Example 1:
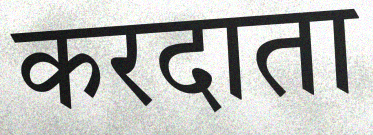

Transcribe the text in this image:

करदाता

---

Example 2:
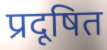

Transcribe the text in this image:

प्रदूषित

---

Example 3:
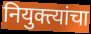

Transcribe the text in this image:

नियुक्त्यांचा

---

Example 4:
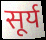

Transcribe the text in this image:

सूर्य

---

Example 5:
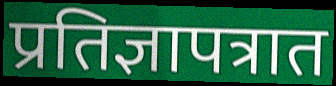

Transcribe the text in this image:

प्रतिज्ञापत्रात